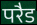
परैड